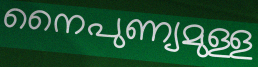
നൈപുണ്യമുള്ള